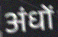
अंधों